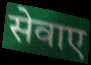
सेवाए